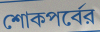
শোকপর্বের